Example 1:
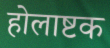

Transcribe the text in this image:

होलाष्टक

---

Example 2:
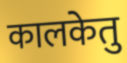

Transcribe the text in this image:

कालकेतु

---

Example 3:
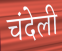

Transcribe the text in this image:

चंदेली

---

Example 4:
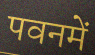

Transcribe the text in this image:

पवनमें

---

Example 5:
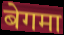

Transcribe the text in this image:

बेगमा